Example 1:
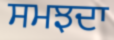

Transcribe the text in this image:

ਸਮਝਦਾ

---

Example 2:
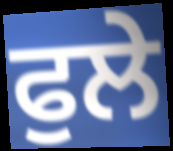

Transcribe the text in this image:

ਫੁਲੇ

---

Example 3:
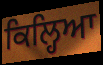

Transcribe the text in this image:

ਕਿਲ੍ਹਿਆ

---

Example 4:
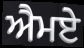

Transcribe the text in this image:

ਐਮਏ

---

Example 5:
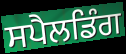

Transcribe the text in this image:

ਸਪੈਲਡਿੰਗ